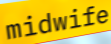
midwife